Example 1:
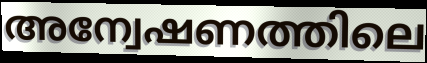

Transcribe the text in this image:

അന്വേഷണത്തിലെ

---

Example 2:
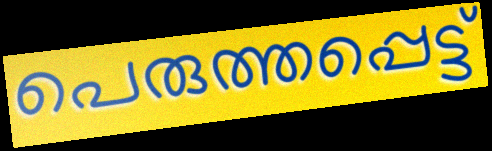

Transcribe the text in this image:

പെരുത്തപ്പെട്ട്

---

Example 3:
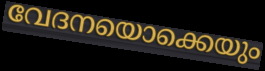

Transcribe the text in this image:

വേദനയൊക്കെയും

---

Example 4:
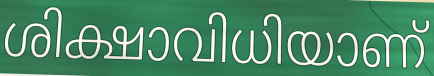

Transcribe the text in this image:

ശിക്ഷാവിധിയാണ്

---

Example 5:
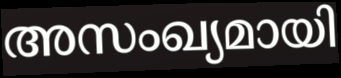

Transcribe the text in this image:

അസംഖ്യമായി